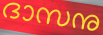
ദാസനു